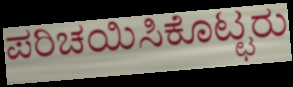
ಪರಿಚಯಿಸಿಕೊಟ್ಟರು